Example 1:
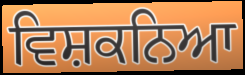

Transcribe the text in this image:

ਵਿਸ਼ਕਨਿਆ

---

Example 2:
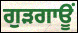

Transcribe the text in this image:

ਗੁੜਗਾਊਂ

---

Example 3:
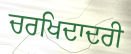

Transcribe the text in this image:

ਚਰਖਿਦਾਦਰੀ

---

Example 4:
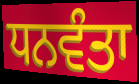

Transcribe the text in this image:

ਧਨਵੰਤਾ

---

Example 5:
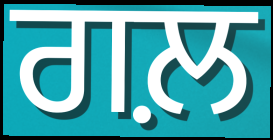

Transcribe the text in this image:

ਗਲ਼